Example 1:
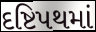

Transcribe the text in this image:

દષ્ટિપથમાં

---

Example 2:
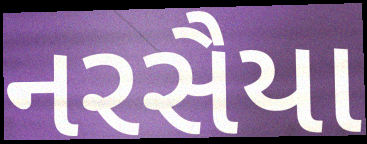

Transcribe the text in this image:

નરસૈયા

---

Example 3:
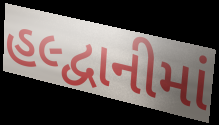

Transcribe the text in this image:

હલ્દ્વાનીમાં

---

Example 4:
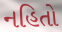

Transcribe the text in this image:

નહિતો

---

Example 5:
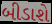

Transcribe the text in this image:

બીડાશે